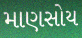
માણસોય